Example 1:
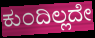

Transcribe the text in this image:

ಕುಂದಿಲ್ಲದೇ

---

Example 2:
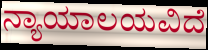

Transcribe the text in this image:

ನ್ಯಾಯಾಲಯವಿದೆ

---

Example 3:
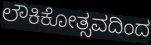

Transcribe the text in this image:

ಲೌಕಿಕೋತ್ಸವದಿಂದ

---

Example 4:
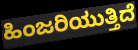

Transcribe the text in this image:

ಹಿಂಜರಿಯುತ್ತಿದೆ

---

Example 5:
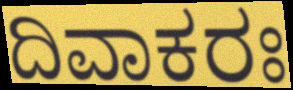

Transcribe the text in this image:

ದಿವಾಕರಃ